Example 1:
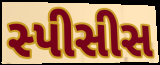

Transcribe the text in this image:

સ્પીસીસ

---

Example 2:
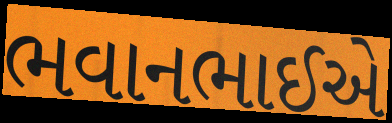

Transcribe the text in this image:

ભવાનભાઈએ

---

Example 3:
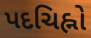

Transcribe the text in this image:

પદચિહ્નો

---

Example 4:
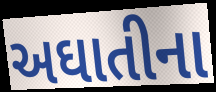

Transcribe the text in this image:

અઘાતીના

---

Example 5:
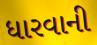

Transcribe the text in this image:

ધારવાની